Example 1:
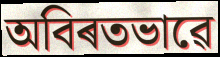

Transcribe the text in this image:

অবিৰতভাৱে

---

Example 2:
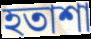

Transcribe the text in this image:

হতাশা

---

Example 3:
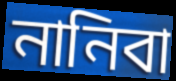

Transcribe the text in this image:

নানিবা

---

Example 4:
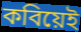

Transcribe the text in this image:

কবিয়েই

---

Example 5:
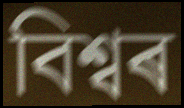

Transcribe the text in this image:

বিশ্বৰ